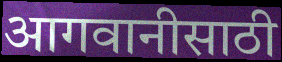
आगवानीसाठी